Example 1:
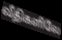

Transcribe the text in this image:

வீதிகளிலே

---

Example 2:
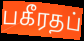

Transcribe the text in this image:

பகீரதப்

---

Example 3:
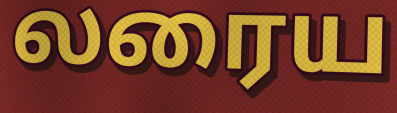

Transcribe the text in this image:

லரைய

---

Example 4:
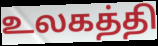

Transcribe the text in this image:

உலகத்தி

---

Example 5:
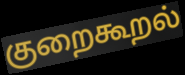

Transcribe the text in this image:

குறைகூறல்